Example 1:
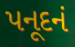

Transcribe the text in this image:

પનૂદનં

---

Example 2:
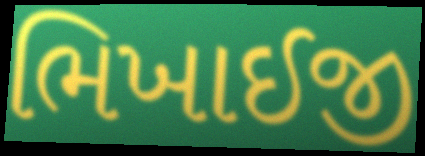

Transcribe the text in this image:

ભિખાઈજી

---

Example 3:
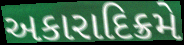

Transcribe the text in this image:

અકારાદિક્રમે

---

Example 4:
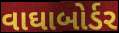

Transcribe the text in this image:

વાઘાબોર્ડર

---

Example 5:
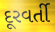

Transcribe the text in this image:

દૂરવર્તી